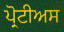
ਪ੍ਰੋਟੀਅਸ